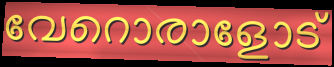
വേറൊരാളോട്